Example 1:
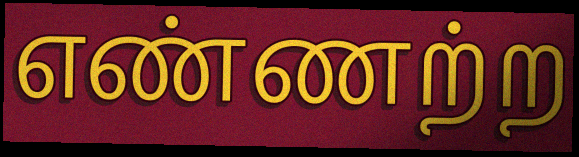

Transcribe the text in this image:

எண்ணற்ற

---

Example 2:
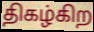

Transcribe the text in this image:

திகழ்கிற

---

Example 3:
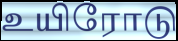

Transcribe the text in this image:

உயிரோடு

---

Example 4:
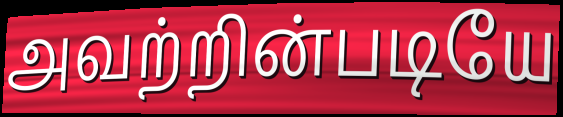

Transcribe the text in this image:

அவற்றின்படியே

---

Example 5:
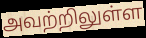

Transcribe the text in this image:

அவற்றிலுள்ள